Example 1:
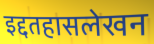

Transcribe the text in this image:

इद्दतहासलेखन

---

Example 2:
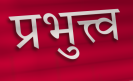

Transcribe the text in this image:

प्रभुत्त्व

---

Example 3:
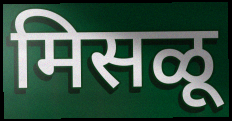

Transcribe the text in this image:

मिसळू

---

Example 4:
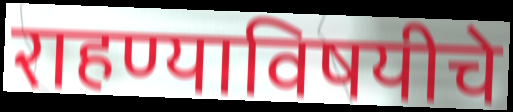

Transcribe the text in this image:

राहण्याविषयीचे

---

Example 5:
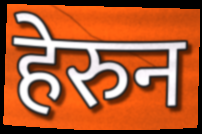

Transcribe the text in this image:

हेरुन